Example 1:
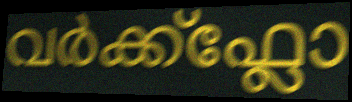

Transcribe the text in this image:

വർക്ക്ഫ്ലോ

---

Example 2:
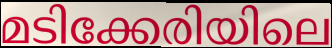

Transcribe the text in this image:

മടിക്കേരിയിലെ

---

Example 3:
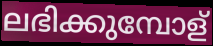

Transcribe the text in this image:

ലഭിക്കുമ്പോള്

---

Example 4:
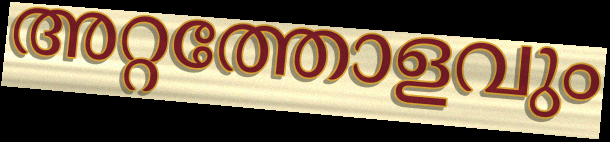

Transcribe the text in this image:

അറ്റത്തോളവും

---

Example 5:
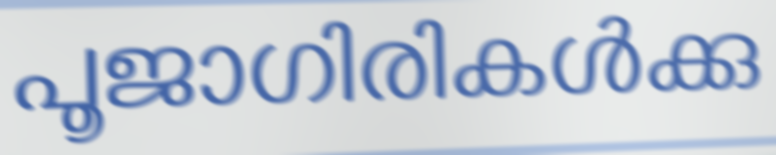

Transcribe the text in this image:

പൂജാഗിരികൾക്കു